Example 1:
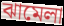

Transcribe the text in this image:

ঝামেলা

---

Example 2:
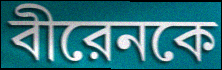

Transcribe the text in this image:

বীরেনকে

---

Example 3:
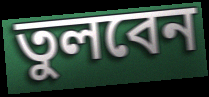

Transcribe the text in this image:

তুলবেন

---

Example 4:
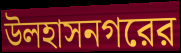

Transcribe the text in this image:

উলহাসনগরের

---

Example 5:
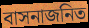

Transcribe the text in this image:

বাসনাজনিত